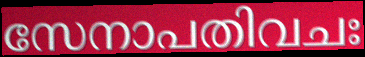
സേനാപതിവചഃ